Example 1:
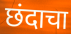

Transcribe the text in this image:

छंदाचा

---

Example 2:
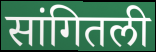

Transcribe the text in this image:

सांगितली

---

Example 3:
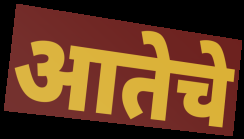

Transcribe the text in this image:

आतेचे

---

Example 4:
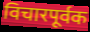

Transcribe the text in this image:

विचारपूर्वक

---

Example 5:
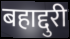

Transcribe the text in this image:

बहाद्दुरी